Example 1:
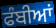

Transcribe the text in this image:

ਫੰਬੀਆਂ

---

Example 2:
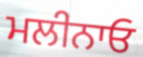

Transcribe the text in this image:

ਮਲੀਨਾਓ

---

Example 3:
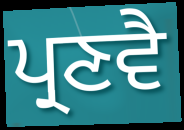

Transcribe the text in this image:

ਪ੍ਰਣਵੈ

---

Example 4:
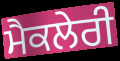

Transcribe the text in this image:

ਮੈਕਲੇਰੀ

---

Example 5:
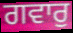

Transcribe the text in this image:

ਗਵਾਰੁ